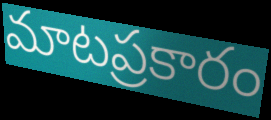
మాటప్రకారం